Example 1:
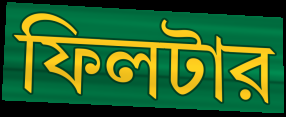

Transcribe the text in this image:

ফিলটার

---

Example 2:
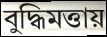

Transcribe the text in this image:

বুদ্ধিমত্তায়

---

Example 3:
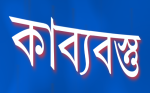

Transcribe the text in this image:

কাব্যবস্তু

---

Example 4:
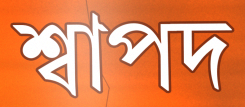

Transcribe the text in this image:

শ্বাপদ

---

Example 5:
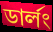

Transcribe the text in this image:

ডার্লং